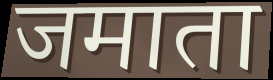
जमाता